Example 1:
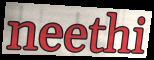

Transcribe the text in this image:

neethi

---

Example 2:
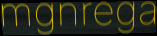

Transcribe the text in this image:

mgnrega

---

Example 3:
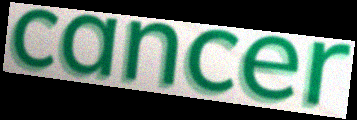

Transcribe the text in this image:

cancer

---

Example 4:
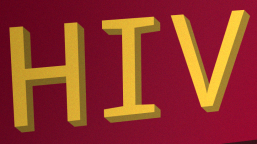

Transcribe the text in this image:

HIV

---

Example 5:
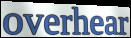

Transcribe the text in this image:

overhear